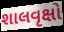
શાલવૃક્ષો